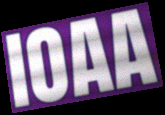
IOAA